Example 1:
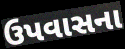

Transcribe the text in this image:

ઉપવાસના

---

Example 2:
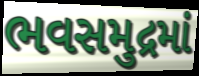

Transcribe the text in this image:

ભવસમુદ્રમાં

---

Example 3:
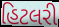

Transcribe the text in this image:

હિટલરી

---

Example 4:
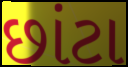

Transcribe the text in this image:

છાંટા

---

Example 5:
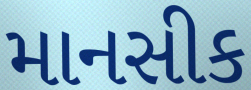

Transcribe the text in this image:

માનસીક